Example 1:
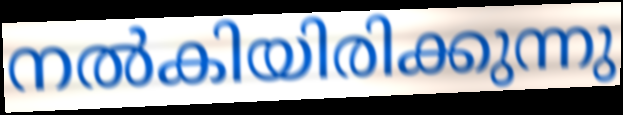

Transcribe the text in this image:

നൽകിയിരിക്കുന്നു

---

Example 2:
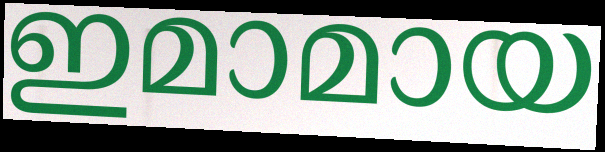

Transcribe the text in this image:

ഇമാമായ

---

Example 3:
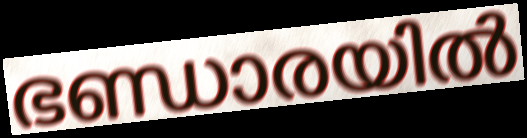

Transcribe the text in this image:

ഭണ്ഡാരയിൽ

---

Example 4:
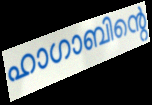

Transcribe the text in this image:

ഹാഗാബിന്റെ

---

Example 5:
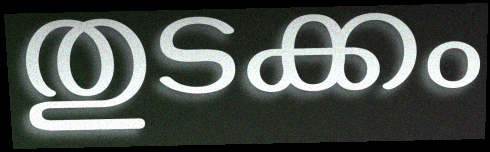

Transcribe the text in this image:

തുടക്കം